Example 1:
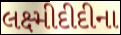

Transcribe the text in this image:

લક્ષ્મીદીદીના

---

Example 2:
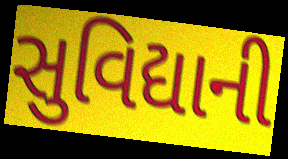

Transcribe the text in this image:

સુવિદ્યાની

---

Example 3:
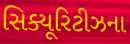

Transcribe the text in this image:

સિક્યૂરિટીઝના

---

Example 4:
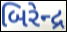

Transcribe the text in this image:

બિરેન્દ્ર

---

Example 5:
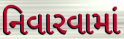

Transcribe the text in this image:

નિવારવામાં